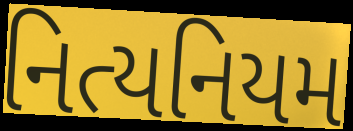
નિત્યનિયમ